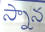
స్నాన